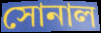
সোনাল